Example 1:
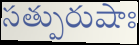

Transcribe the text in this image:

సత్పురుషాః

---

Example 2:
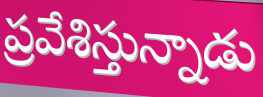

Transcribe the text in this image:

ప్రవేశిస్తున్నాడు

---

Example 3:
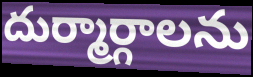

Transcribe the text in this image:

దుర్మార్గాలను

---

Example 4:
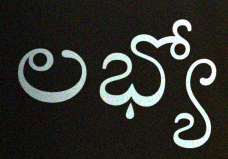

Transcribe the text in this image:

లభ్యో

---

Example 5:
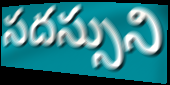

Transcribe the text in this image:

సదస్సుని